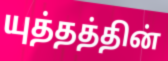
யுத்தத்தின்